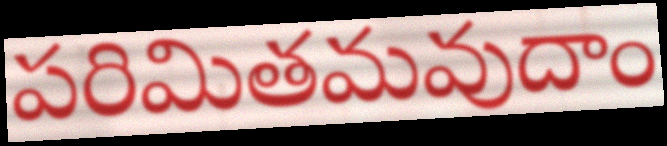
పరిమితమవుదాం